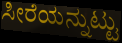
ಸೀರೆಯನ್ನುಟ್ಟು